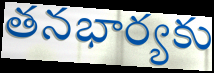
తనభార్యకు